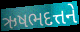
ઋષભદત્તને